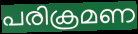
പരിക്രമണ